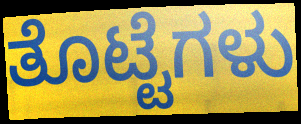
ತೊಟ್ಟೆಗಳು